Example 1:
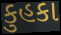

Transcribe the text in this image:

કુહકા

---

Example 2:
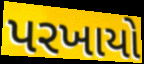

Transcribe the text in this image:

પરખાયો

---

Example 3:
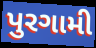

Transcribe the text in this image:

પુરગામી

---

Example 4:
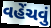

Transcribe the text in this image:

વહેંચવું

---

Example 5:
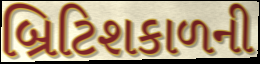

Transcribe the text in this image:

બ્રિટિશકાળની